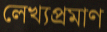
লেখ্যপ্রমাণ